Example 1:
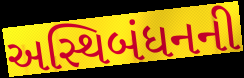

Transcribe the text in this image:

અસ્થિબંધનની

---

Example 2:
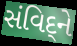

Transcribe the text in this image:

સંવિદ્‌ને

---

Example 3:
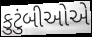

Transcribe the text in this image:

કુટુંબીઓએ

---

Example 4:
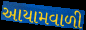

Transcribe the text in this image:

આયામવાળી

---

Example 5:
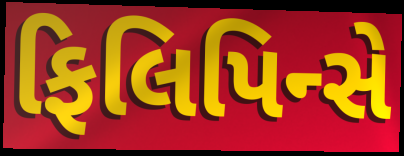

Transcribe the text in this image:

ફિલિપિન્સે